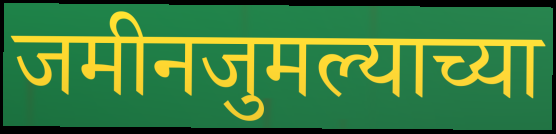
जमीनजुमल्याच्या